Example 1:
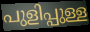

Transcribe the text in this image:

പുളിപ്പുള്ള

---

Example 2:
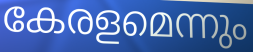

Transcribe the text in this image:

കേരളമെന്നും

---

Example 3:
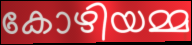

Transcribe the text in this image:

കോഴിയമ്മ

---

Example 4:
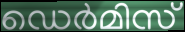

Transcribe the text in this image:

ഡെർമിസ്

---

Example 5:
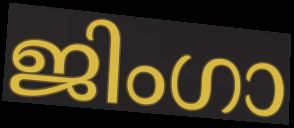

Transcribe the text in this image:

ജിംഗാ